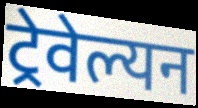
ट्रेवेल्यन